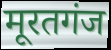
मूरतगंज